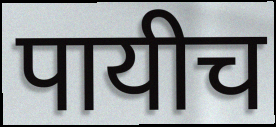
पायीच